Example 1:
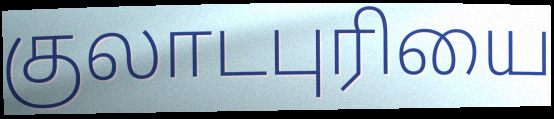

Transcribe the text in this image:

குலாடபுரியை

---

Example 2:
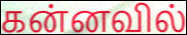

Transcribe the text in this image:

கன்னவில்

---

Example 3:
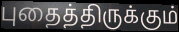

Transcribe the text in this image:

புதைத்திருக்கும்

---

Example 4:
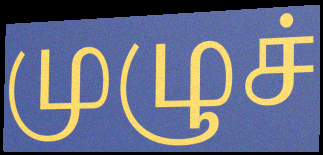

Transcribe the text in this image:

முழுச்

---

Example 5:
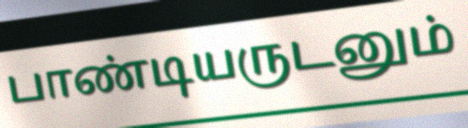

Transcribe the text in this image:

பாண்டியருடனும்